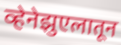
व्हेनेझुएलातून